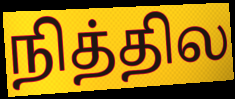
நித்தில